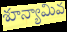
శూన్యామివ